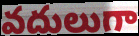
వదులుగా